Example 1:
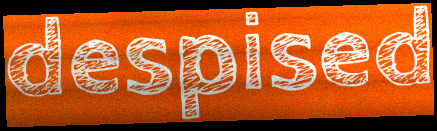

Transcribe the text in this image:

despised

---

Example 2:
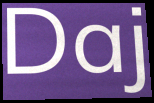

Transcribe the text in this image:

Daj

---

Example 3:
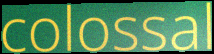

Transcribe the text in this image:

colossal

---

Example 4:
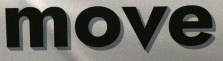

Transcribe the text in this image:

move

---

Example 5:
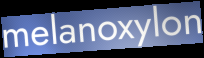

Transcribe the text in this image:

melanoxylon